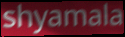
shyamala